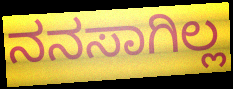
ನನಸಾಗಿಲ್ಲ